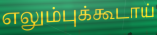
எலும்புக்கூடாய்